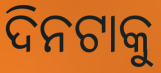
ଦିନଟାକୁ